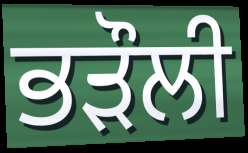
ਭੜੌਲੀ